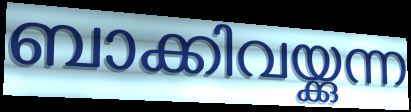
ബാക്കിവയ്ക്കുന്ന